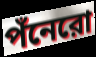
পঁনেরো